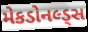
મેકડોનલ્ડ્સ